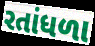
રતાંધળા